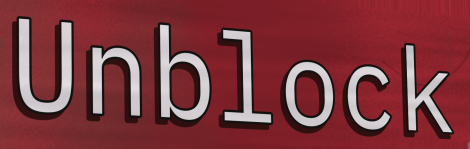
Unblock